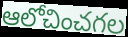
ఆలోచించగల